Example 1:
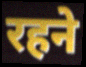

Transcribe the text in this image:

रहने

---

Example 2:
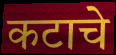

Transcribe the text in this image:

कटाचे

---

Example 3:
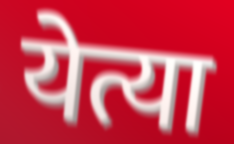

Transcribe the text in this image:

येत्या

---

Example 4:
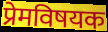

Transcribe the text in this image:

प्रेमविषयक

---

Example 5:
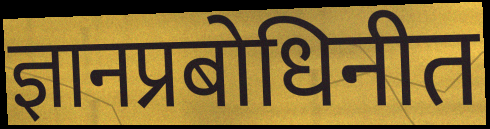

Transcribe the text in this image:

ज्ञानप्रबोधिनीत